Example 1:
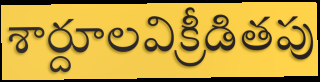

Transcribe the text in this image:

శార్దూలవిక్రీడితపు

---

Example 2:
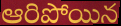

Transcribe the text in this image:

ఆరిపోయిన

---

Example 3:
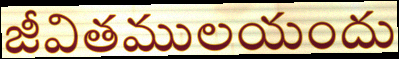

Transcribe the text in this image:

జీవితములయందు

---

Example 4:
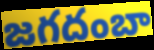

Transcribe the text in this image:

జగదంబా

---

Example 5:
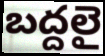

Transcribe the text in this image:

బద్దలై